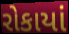
રોકાયાં